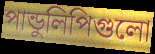
পান্ডুলিপিগুলো